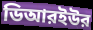
ডিআরইউর